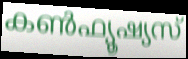
കൺഫ്യൂഷ്യസ്